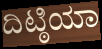
ದಿಟ್ಠಿಯಾ